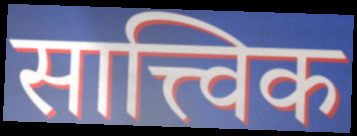
सात्त्विक